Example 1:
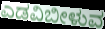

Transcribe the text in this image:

ಎಡವಿಬೀಳುವ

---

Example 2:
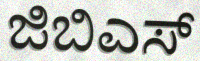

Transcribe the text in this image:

ಜಿಬಿಎಸ್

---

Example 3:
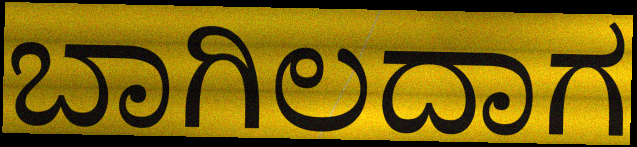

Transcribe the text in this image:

ಬಾಗಿಲದಾಗ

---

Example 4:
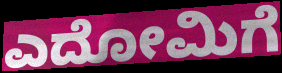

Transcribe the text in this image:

ಎದೋಮಿಗೆ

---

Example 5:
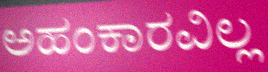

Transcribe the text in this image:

ಅಹಂಕಾರವಿಲ್ಲ